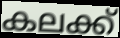
കലക്ക്